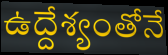
ఉద్దేశ్యంతోనే